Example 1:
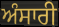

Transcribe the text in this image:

ਅੰਸਾਰੀ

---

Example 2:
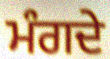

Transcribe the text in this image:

ਮੰਗਦੇ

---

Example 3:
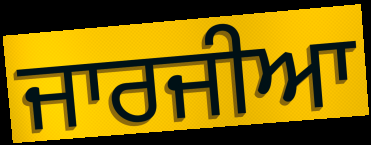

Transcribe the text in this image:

ਜਾਰਜੀਆ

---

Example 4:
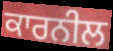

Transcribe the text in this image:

ਕਾਰਨੀਲ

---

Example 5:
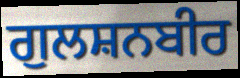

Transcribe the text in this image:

ਗੁਲਸ਼ਨਬੀਰ